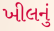
ખીલનું